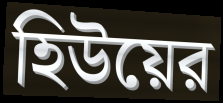
হিউয়ের